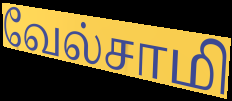
வேல்சாமி